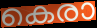
കെരാ